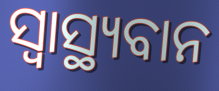
ସ୍ୱାସ୍ଥ୍ୟବାନ